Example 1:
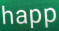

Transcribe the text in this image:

happ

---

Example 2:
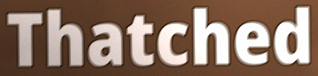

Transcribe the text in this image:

Thatched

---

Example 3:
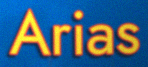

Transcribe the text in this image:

Arias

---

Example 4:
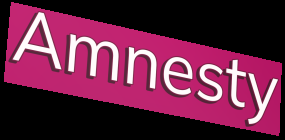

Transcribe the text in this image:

Amnesty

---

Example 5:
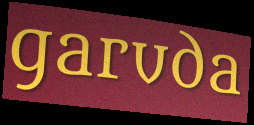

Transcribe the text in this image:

garuda